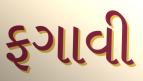
ફગાવી